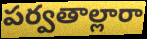
పర్వతాల్లారా